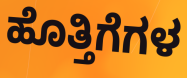
ಹೊತ್ತಿಗೆಗಳ